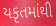
યકૃતમાંથી